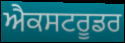
ਐਕਸਟਰੂਡਰ